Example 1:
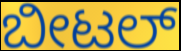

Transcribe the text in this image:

ಬೀಟಲ್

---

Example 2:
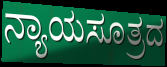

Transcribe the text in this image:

ನ್ಯಾಯಸೂತ್ರದ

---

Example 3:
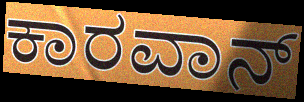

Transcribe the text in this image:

ಕಾರವಾನ್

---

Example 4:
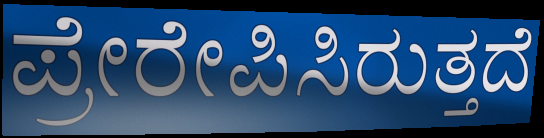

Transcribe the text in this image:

ಪ್ರೇರೇಪಿಸಿರುತ್ತದೆ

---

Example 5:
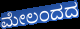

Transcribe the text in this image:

ಮೇಲಂದದ